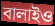
বালাইও